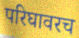
परिघावरच